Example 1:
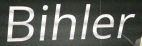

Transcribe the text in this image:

Bihler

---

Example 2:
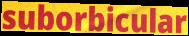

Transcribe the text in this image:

suborbicular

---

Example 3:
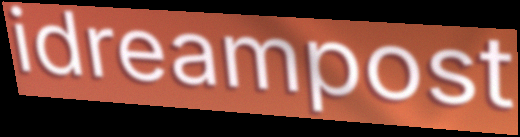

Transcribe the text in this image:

idreampost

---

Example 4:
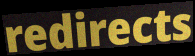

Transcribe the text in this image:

redirects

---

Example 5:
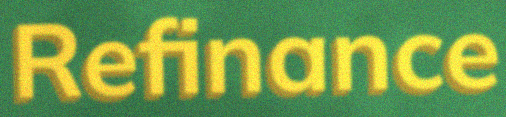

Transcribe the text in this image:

Refinance